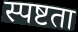
स्पष्टता